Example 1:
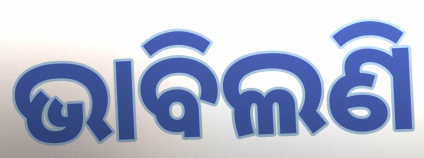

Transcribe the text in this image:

ଭାବିଲଣି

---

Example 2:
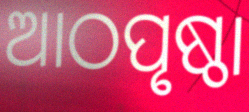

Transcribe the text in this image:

ଆଠପୃଷ୍ଠା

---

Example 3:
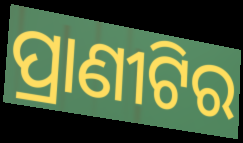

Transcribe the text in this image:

ପ୍ରାଣୀଟିର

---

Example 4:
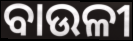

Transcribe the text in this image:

ବାଉଳୀ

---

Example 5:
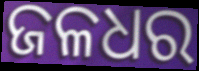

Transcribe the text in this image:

ଜଳଧର